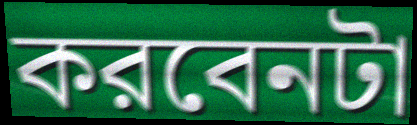
করবেনটা